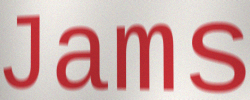
Jams